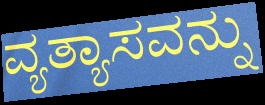
ವ್ಯತ್ಯಾಸವನ್ನು